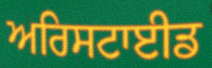
ਅਰਿਸਟਾਈਡ